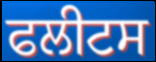
ਫਲੀਟਸ